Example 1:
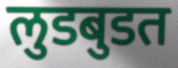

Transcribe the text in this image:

लुडबुडत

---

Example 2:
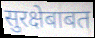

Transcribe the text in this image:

सुरक्षेबाबत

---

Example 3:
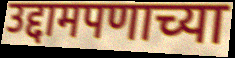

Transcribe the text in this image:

उद्दामपणाच्या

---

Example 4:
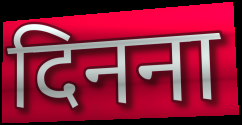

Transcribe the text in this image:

दिनना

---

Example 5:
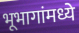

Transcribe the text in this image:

भूभागांमध्ये